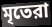
মৃতেরা